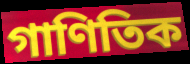
গাণিতিক